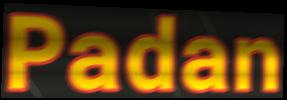
Padan